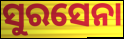
ସୁରସେନା